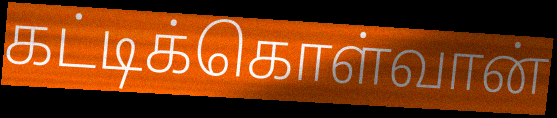
கட்டிக்கொள்வான்